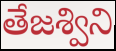
తేజశ్విని